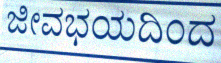
ಜೀವಭಯದಿಂದ